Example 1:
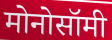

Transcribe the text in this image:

मोनोसॉमी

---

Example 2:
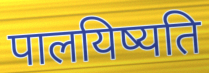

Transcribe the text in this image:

पालयिष्यति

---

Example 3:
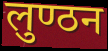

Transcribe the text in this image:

लुण्ठन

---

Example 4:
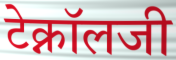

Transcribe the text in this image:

टेक्नॉलजी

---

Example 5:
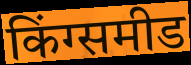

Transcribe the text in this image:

किंग्समीड